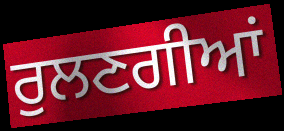
ਰੁਲਣਗੀਆਂ